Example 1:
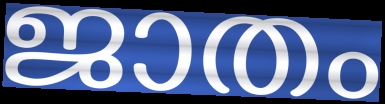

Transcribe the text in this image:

ജാതം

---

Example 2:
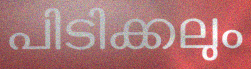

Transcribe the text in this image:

പിടിക്കലും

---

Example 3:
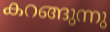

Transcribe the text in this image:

കറങ്ങുന്നു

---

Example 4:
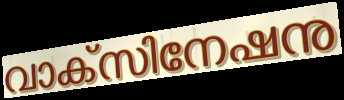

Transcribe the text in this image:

വാക്‌സിനേഷനു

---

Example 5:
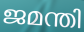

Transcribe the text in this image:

ജമന്തി